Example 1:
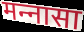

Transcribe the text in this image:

मन्नासा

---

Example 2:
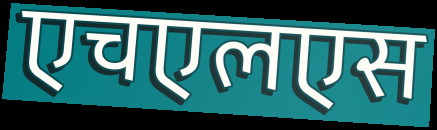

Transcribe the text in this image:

एचएलएस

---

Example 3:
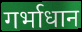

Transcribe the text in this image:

गर्भाधान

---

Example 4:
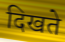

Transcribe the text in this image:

दिखते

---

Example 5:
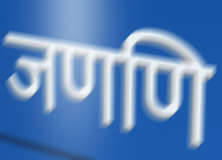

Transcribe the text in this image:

जणणि